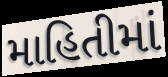
માહિતીમાં